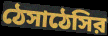
ঠেসাঠেসির